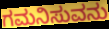
ಗಮನಿಸುವನು